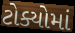
ટોક્યોમાં